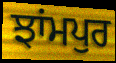
ਝਾਂਮਪੁਰ